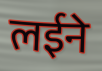
लईने